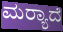
ಮರ‍್ಯಾದೆ